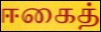
ஈகைத்